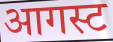
आगस्ट